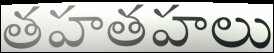
తహతహలు